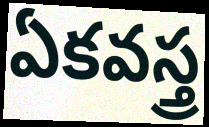
ఏకవస్త్ర